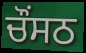
ਚੌਂਸਠ